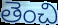
తెంచి